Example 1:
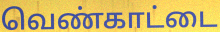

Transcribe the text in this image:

வெண்காட்டை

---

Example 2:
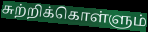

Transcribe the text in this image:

சுற்றிக்கொள்ளும்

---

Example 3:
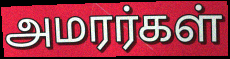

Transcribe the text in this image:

அமரர்கள்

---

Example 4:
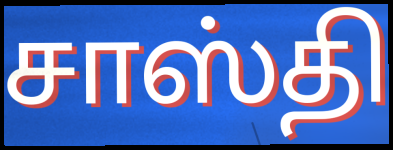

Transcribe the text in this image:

சாஸ்தி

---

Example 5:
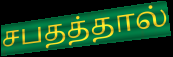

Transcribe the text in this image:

சபதத்தால்